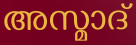
അസ്മാദ്